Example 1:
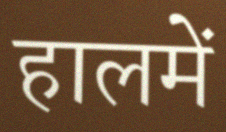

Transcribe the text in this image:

हालमें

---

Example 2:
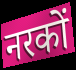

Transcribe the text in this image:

नरकों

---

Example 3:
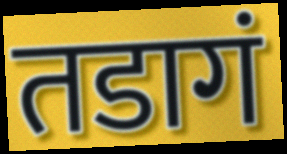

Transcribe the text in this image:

तडागं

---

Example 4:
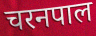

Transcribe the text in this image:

चरनपाल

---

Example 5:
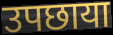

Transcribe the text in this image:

उपछाया